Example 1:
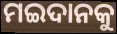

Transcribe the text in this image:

ମଇଦାନକୁ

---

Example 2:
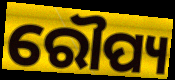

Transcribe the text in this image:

ରୌପ୍ୟ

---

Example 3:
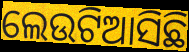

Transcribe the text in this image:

ଲେଉଟିଆସିଛି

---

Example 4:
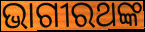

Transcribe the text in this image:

ଭାଗୀରଥଙ୍କ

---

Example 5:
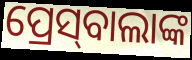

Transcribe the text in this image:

ପ୍ରେସ୍‌ବାଲାଙ୍କ